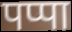
पप्‍पा